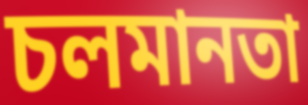
চলমানতা